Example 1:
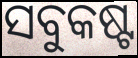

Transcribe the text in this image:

ସବୁକଷ୍ଟ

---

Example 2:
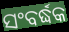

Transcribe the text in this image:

ସଂବର୍ଦ୍ଧକ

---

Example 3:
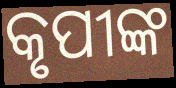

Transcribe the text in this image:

କୃପୀଙ୍କ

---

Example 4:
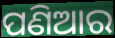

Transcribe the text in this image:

ପଣିଆର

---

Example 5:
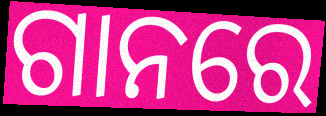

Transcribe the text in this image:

ଗାନରେ